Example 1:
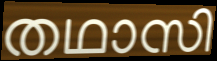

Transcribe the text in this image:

തഥാസി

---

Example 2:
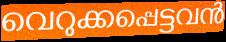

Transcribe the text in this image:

വെറുക്കപ്പെട്ടവൻ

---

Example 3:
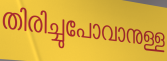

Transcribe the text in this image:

തിരിച്ചുപോവാനുള്ള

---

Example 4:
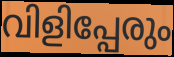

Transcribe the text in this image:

വിളിപ്പേരും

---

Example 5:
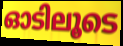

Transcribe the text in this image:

ഓടിലൂടെ